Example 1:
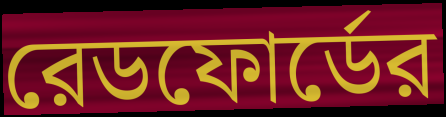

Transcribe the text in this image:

রেডফোর্ডের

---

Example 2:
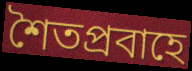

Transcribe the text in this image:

শৈতপ্রবাহে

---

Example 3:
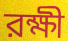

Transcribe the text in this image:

রক্ষী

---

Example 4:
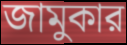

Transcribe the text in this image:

জামুকার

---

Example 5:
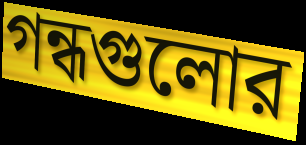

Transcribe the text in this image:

গন্ধগুলোর